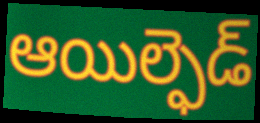
ఆయిల్ఫెడ్